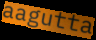
aagutta